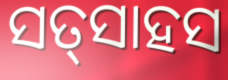
ସତ୍‍ସାହସ